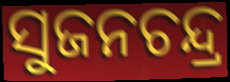
ସୁଜନଚନ୍ଦ୍ର